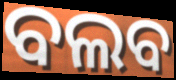
ବଲବ